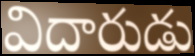
విదారుడు